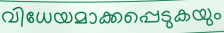
വിധേയമാക്കപ്പെടുകയും